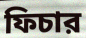
ফিচার